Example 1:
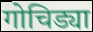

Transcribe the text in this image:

गोचिड्या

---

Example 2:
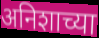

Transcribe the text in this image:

अनिशाच्या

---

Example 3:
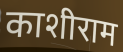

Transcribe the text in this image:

काशीराम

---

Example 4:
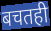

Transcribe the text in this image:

बचतही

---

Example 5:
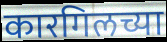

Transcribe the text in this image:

कारगिलच्या